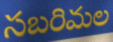
సబరిమల